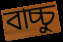
বাচ্চু